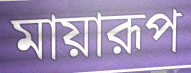
মায়ারূপ